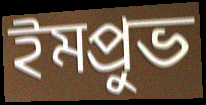
ইমপ্রুভ